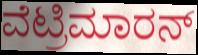
ವೆಟ್ರಿಮಾರನ್